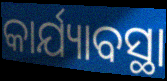
କାର୍ଯ୍ୟାବସ୍ଥା